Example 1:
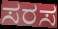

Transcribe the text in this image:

ಸರಸ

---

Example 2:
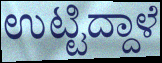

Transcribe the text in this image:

ಉಟ್ಟಿದ್ದಾಳೆ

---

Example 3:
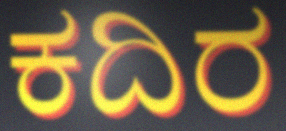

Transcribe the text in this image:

ಕದಿರ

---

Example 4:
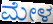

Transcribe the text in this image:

ಮೇಳ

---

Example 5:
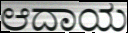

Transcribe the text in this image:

ಆದಾಯ